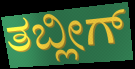
ತಬ್ಲೀಗ್